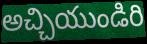
అచ్చియుండిరి